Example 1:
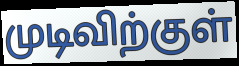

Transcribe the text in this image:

முடிவிற்குள்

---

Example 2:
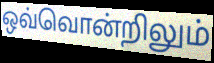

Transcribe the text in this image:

ஒவ்வொன்றிலும்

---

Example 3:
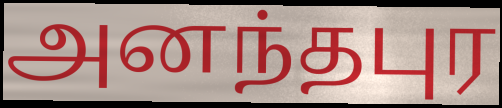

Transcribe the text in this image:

அனந்தபுர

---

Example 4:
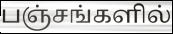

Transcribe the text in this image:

பஞ்சங்களில்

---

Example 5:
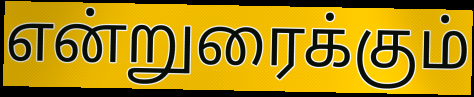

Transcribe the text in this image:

என்றுரைக்கும்